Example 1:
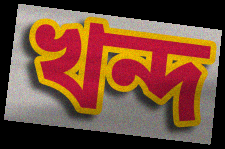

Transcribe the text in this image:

খন্দ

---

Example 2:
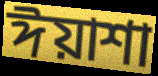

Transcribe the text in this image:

ঈয়াশা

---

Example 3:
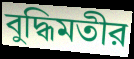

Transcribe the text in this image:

বুদ্ধিমতীর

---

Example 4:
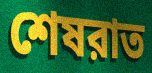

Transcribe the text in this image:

শেষরাত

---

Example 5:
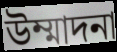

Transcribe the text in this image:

উম্মাদনা